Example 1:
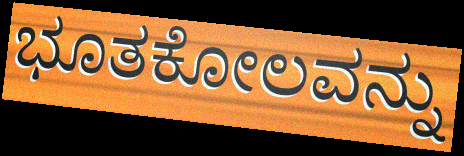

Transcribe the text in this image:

ಭೂತಕೋಲವನ್ನು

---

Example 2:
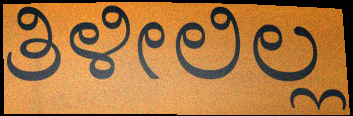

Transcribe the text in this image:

ತಿಳೀಲಿಲ್ಲ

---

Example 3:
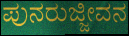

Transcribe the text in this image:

ಪುನರುಜ್ಜೀವನ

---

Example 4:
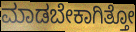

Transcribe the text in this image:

ಮಾಡಬೇಕಾಗಿತ್ತೋ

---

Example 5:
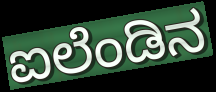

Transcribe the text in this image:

ಐಲೆಂಡಿನ